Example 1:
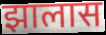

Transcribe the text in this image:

झालास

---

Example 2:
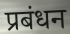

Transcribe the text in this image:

प्रबंधन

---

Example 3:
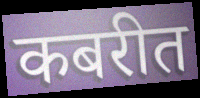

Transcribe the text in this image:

कबरीत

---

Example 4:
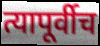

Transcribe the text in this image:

त्यापूर्वीच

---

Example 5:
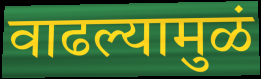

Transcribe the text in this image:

वाढल्यामुळं